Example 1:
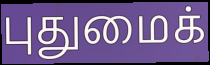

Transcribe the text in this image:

புதுமைக்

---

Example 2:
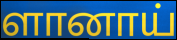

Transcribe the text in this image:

ளானாய்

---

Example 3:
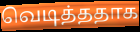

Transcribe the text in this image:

வெடித்ததாக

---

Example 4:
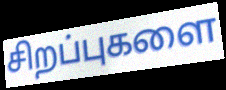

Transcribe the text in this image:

சிறப்புகளை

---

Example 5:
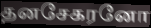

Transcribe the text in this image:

தனசேகரனோ